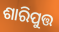
ଶାରିପୁତ୍ତ